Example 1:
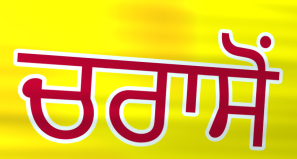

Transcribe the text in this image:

ਚਰਾਸੋਂ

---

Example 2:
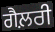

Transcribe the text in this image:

ਗੈਲ਼ਰੀ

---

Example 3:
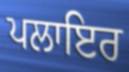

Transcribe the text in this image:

ਪਲਾਇਰ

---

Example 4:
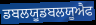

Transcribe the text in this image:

ਡਬਲਯੂਡਬਲਯੂਐਫ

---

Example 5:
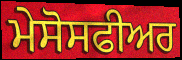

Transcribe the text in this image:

ਮੇਸੋਸਫੀਅਰ